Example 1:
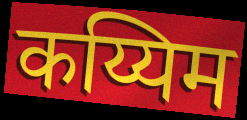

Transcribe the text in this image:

कय्यिम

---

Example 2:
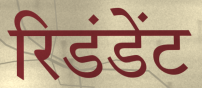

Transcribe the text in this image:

रिडंडेंट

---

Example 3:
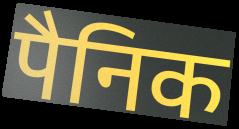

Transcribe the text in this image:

पैनिक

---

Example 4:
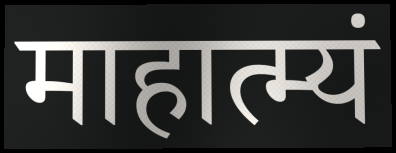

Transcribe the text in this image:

माहात्म्यं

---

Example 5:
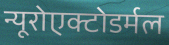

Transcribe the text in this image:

न्यूरोएक्टोडर्मल